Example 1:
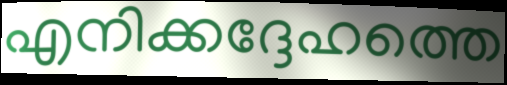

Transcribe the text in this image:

എനിക്കദ്ദേഹത്തെ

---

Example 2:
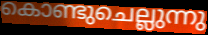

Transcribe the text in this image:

കൊണ്ടുചെല്ലുന്നു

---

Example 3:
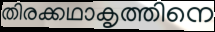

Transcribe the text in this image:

തിരക്കഥാകൃത്തിനെ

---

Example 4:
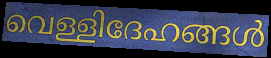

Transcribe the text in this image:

വെള്ളിദേഹങ്ങൾ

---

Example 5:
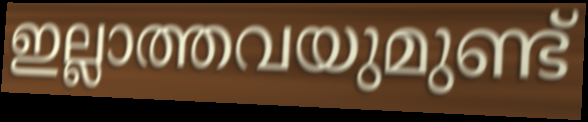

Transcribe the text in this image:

ഇല്ലാത്തവയുമുണ്ട്